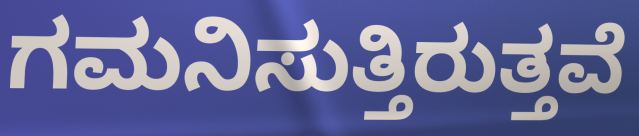
ಗಮನಿಸುತ್ತಿರುತ್ತವೆ